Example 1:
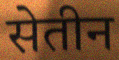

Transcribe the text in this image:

सेतीन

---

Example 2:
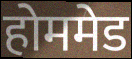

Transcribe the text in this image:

होममेड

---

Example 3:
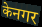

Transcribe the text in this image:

केनगर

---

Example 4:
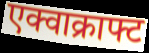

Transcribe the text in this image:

एक्वाक्राफ्ट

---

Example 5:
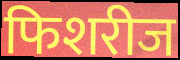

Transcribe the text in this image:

फिशरीज